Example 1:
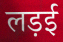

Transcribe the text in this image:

लड़ई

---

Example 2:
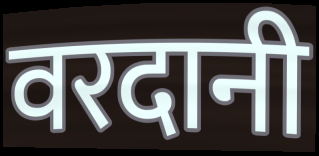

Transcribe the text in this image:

वरदानी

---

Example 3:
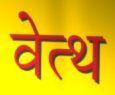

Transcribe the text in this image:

वेत्थ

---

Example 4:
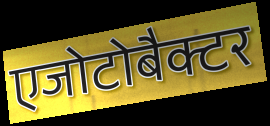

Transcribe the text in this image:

एजोटोबैक्टर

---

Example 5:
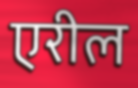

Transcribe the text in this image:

एरील